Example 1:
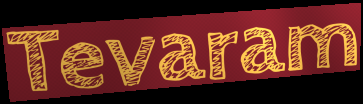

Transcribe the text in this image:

Tevaram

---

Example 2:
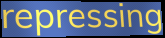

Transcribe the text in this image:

repressing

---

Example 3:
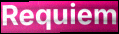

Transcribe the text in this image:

Requiem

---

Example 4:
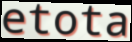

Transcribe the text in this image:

etota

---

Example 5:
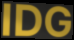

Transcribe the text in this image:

IDG